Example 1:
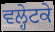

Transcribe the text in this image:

ਵਲ੍ਹੇਟਕੇ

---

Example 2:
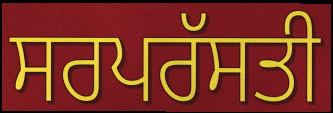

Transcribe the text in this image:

ਸਰਪਰੱਸਤੀ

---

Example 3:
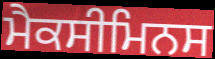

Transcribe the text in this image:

ਮੈਕਸੀਮਿਨਸ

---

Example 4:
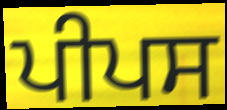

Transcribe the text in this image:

ਪੀਪਸ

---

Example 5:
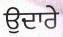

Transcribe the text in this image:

ਉਦਾਰੇ